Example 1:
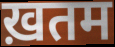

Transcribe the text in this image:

ख़तम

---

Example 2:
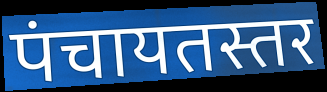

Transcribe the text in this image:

पंचायतस्तर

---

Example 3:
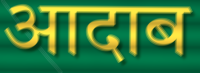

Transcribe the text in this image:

आदाब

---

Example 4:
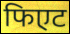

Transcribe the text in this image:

फिएट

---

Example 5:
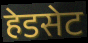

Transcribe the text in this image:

हेडसेट